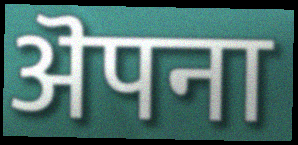
ऄपना